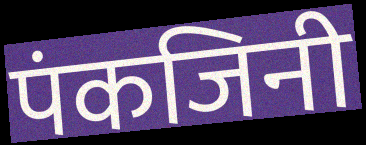
पंकजिनी